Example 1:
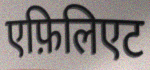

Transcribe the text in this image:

एफ़िलिएट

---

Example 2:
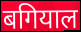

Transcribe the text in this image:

बगियाल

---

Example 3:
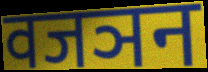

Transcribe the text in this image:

वजञन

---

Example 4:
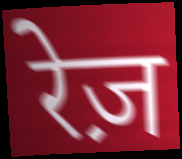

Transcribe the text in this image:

रेज़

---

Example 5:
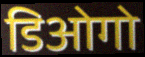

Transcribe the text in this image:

डिओगो